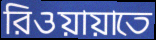
রিওয়ায়াতে